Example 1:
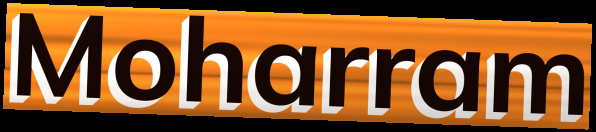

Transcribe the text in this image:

Moharram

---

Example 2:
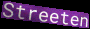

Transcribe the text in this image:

Streeten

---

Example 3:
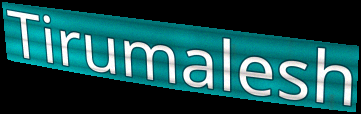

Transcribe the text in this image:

Tirumalesh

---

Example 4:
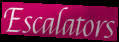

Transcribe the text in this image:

Escalators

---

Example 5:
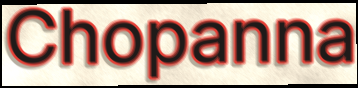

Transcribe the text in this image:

Chopanna